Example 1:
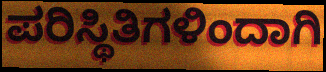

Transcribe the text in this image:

ಪರಿಸ್ಥಿತಿಗಳಿಂದಾಗಿ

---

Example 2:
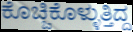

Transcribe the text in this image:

ಕೊಚ್ಚಿಕೊಳ್ಳುತ್ತಿದ್ದ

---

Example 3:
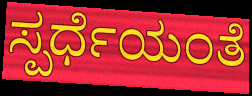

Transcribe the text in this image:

ಸ್ಪರ್ಧೆಯಂತೆ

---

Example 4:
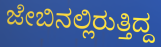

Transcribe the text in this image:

ಜೇಬಿನಲ್ಲಿರುತ್ತಿದ್ದ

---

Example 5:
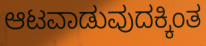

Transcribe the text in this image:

ಆಟವಾಡುವುದಕ್ಕಿಂತ